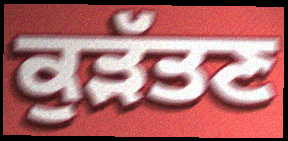
ਕੁੜੱਤਣ